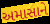
અમાસાને